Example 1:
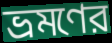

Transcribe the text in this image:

ভ্রমণের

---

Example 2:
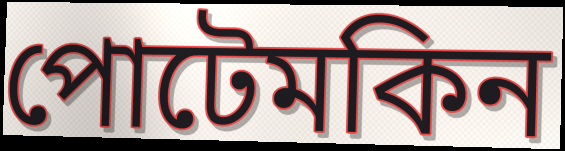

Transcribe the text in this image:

পোটেমকিন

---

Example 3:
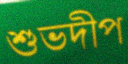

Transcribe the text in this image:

শুভদীপ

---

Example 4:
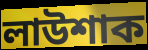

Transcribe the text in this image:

লাউশাক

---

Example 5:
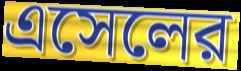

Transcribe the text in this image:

এসেলের